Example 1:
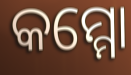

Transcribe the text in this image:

କମ୍ମୋ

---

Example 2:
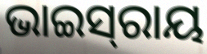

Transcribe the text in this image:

ଭାଇସ୍‍ରାୟ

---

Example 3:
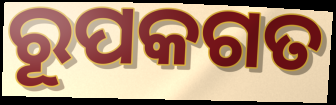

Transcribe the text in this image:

ରୂପକଗତ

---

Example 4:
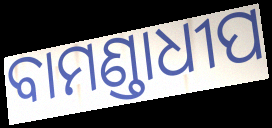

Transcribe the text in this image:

ବାମଣ୍ଡାଧୀପ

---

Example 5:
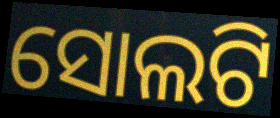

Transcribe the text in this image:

ସୋଲଟି